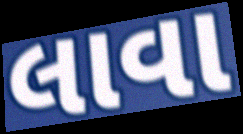
લાવા